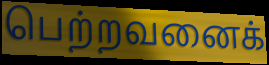
பெற்றவனைக்